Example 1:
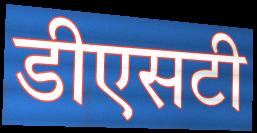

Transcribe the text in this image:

डीएसटी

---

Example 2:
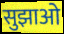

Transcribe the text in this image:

सुझाओ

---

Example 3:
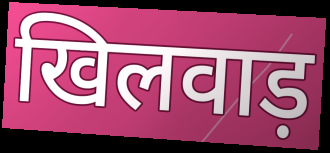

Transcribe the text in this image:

खिलवाड़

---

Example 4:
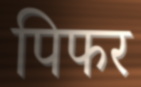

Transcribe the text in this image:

पिफर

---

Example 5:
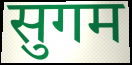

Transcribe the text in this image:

सुगम